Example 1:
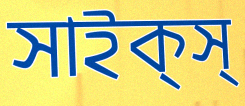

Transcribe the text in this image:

সাইক্‌স্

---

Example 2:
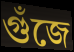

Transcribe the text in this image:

গুঁজে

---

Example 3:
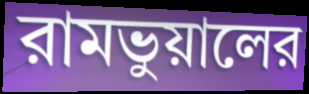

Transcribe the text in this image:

রামভুয়ালের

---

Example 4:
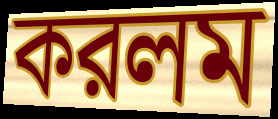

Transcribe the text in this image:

করলম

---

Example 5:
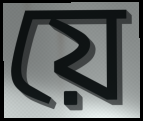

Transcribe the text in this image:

য়ে